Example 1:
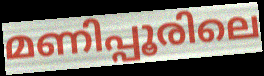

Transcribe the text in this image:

മണിപ്പൂരിലെ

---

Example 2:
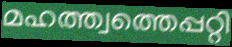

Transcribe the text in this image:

മഹത്ത്വത്തെപ്പറ്റി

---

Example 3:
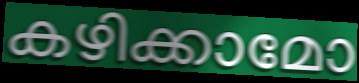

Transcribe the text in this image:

കഴിക്കാമോ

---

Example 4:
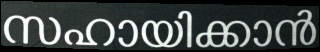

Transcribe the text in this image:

സഹായിക്കാൻ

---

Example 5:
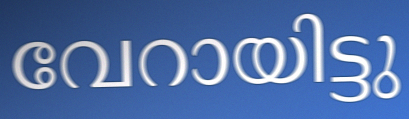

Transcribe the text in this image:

വേറായിട്ടു